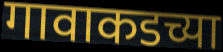
गावाकडच्या